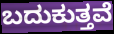
ಬದುಕುತ್ತವೆ